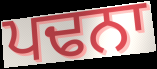
ਪਢਨਾ